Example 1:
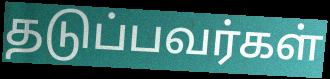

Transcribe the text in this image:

தடுப்பவர்கள்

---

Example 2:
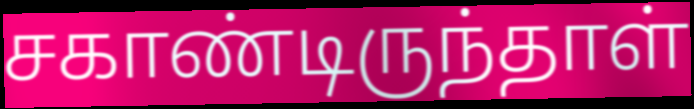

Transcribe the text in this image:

சகாண்டிருந்தாள்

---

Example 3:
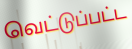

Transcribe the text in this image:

வெட்டுப்பட்ட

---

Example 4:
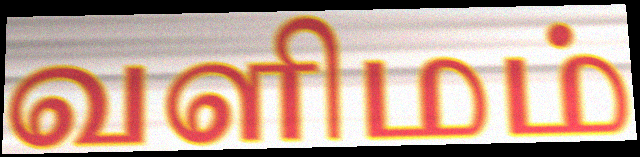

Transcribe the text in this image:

வளிமம்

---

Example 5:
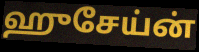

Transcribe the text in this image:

ஹுசேய்ன்